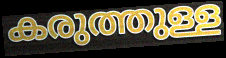
കരുത്തുള്ള